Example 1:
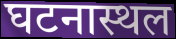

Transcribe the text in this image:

घटनास्थल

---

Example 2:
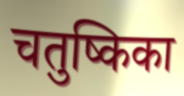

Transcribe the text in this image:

चतुष्किका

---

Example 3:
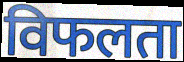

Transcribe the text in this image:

विफलता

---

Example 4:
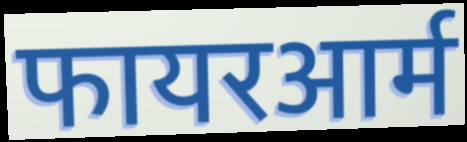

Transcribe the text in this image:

फायरआर्म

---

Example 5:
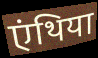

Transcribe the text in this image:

एंथिया